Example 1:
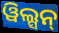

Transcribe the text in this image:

ୱିଲ୍ସନ୍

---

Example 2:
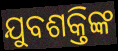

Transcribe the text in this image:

ଯୁବଶକ୍ତିଙ୍କ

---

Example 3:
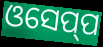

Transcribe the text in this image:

ଓସେପ୍‍ପ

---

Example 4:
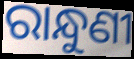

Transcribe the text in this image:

ରାନ୍ଧୁଣୀ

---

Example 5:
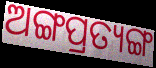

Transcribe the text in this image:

ଅଙ୍ଗପ୍ରତ୍ୟଙ୍ଗ